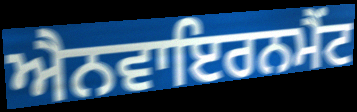
ਐਨਵਾਇਰਨਮੈਂਟ